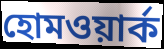
হোমওয়ার্ক